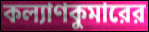
কল্যাণকুমারের